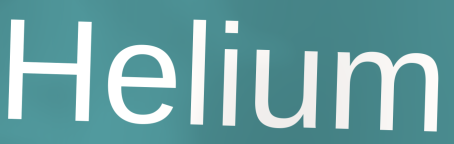
Helium